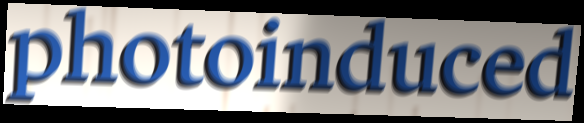
photoinduced